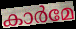
കാർമേ